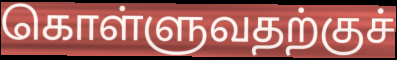
கொள்ளுவதற்குச்